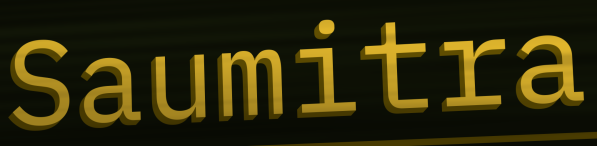
Saumitra